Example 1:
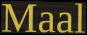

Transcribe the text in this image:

Maal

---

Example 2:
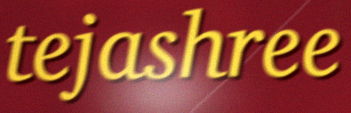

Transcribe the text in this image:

tejashree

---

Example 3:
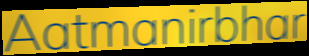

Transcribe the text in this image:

Aatmanirbhar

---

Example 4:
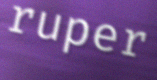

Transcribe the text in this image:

ruper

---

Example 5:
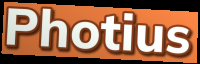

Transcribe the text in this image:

Photius